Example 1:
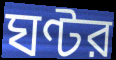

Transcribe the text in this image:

ঘণ্টর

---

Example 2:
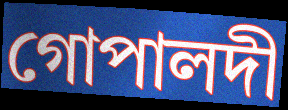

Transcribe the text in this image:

গোপালদী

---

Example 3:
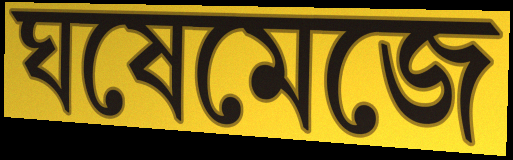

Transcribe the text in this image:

ঘষেমেজে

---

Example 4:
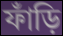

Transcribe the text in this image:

ফাঁড়ি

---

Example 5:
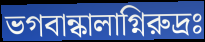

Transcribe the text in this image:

ভগবান্কালাগ্নিরুদ্রঃ